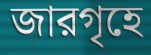
জারগৃহে